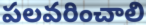
పలవరించాలి